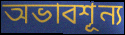
অভাবশূন্য